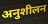
अनुशीलन